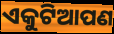
ଏକୁଟିଆପଣ